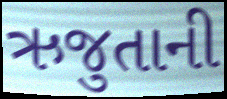
ઋજુતાની